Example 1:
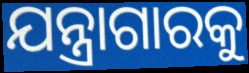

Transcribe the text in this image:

ଯନ୍ତ୍ରାଗାରକୁ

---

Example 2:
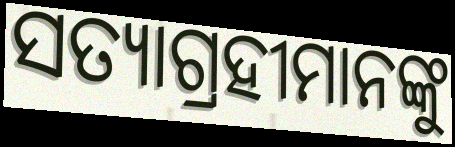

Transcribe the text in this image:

ସତ୍ୟାଗ୍ରହୀମାନଙ୍କୁ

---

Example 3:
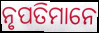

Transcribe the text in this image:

ନୃପତିମାନେ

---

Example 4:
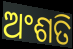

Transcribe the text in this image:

ଅଂଶତି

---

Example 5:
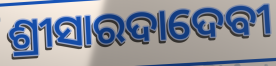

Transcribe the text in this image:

ଶ୍ରୀସାରଦାଦେବୀ